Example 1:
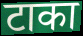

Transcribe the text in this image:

टाका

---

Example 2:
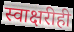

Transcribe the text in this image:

स्वाक्षरीही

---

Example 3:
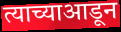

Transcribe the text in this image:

त्याच्याआडून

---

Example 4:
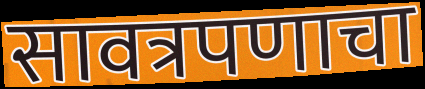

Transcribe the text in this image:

सावत्रपणाचा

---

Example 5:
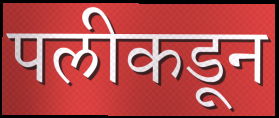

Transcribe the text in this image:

पलीकडून